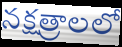
నక్షత్రాలలో